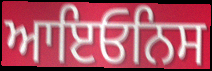
ਆਇਓਨਿਸ